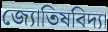
জ্যোতিষবিদ্যা